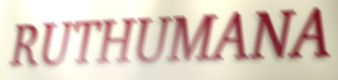
RUTHUMANA